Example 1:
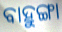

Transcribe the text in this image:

ବାହୁଙ୍ଗା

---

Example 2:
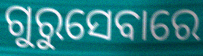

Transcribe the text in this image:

ଗୁରୁସେବାରେ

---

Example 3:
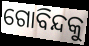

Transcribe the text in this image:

ଗୋବିନ୍ଦକୁ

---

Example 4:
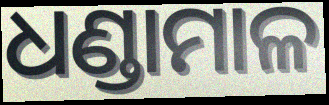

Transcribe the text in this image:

ଧଣ୍ଡାମାଳ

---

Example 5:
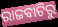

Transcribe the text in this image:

ରାଜବାଟିରୁ